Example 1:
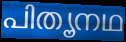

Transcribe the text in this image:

പിതൄനഥ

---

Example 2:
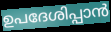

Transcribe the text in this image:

ഉപദേശിപ്പാൻ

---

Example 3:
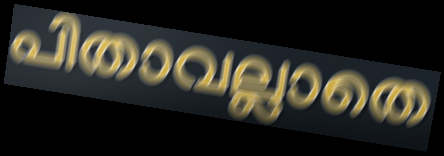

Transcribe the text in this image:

പിതാവല്ലാതെ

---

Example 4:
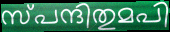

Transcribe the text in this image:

സ്പന്ദിതുമപി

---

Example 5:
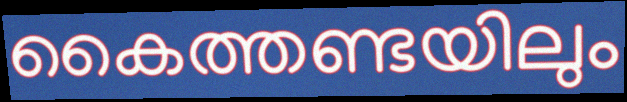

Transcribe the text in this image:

കൈത്തണ്ടയിലും